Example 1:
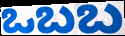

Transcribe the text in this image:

ಒಬಬ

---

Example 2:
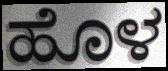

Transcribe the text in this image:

ಹೊಳ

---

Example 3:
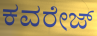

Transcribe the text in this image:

ಕವರೇಜ್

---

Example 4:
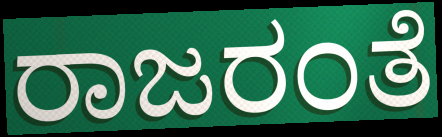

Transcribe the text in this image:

ರಾಜರಂತೆ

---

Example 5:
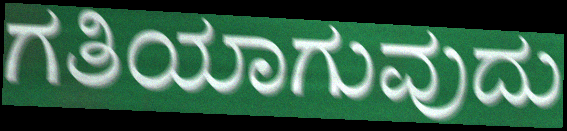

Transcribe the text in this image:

ಗತಿಯಾಗುವುದು